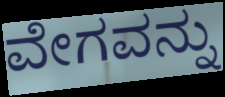
ವೇಗವನ್ನು